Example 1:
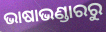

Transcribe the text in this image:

ଭାଷାଭଣ୍ଡାରରୁ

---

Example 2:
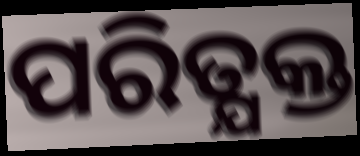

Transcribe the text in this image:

ପରିତ୍ଯକ୍ତ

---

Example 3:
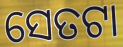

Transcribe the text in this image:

ସେତଟା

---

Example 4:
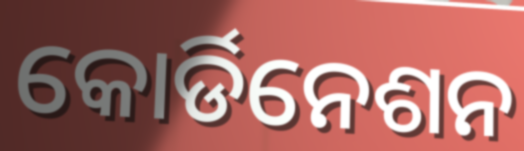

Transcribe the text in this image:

କୋର୍ଡିନେଶନ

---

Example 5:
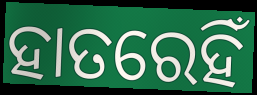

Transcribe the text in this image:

ହାତରେହିଁ